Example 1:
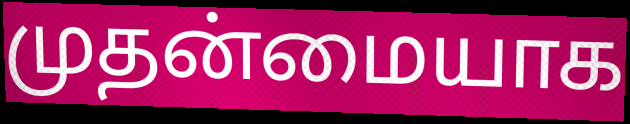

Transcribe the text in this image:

முதன்மையாக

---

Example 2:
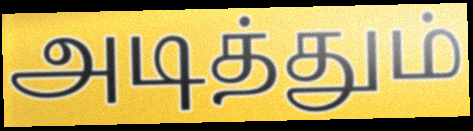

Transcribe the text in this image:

அடித்தும்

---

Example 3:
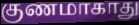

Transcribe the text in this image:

குணமாகாது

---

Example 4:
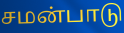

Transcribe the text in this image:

சமன்பாடு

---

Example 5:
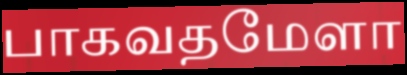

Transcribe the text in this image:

பாகவதமேளா